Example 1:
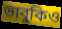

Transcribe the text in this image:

ভাবুকিও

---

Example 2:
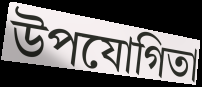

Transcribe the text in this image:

উপযোগিতা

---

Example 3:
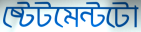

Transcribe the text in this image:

ষ্টেটমেন্টটো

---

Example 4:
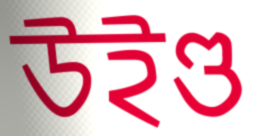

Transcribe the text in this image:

উইণ্ড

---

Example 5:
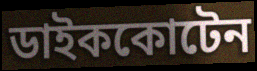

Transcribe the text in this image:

ডাইককোটেন